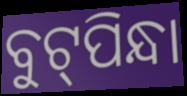
ବୁଟ୍‌ପିନ୍ଧା